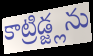
కాట్రిడ్జ్లను